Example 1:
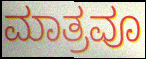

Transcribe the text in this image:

ಮಾತ್ರವೂ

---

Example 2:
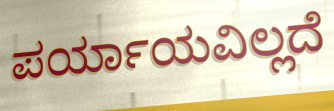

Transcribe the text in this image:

ಪರ್ಯಾಯವಿಲ್ಲದೆ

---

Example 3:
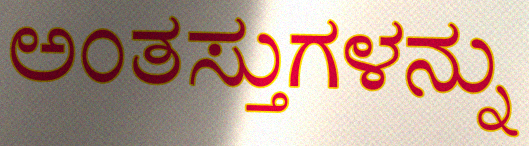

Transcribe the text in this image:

ಅಂತಸ್ತುಗಳನ್ನು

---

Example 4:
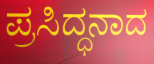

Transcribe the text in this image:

ಪ್ರಸಿದ್ಧನಾದ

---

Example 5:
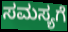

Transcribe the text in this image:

ಸಮಸ್ಯಗೆ